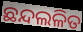
ଛନ୍ଦଲଳିତ